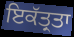
ਇਕੱਤ੍ਰਤਾ